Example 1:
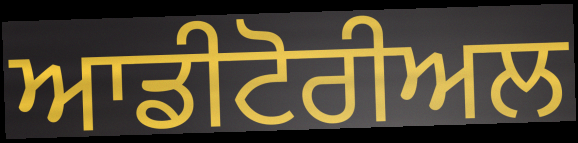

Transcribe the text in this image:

ਆਡੀਟੋਰੀਅਲ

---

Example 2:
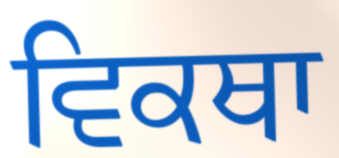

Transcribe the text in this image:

ਵਿਕਥਾ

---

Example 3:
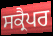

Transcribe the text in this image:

ਸਕ੍ਰੈਪਰ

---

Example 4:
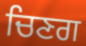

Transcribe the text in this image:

ਚਿਣਗ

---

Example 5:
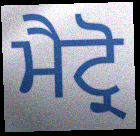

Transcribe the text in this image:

ਮੈਟ੍ਰੋ